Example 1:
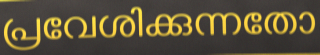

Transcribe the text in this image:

പ്രവേശിക്കുന്നതോ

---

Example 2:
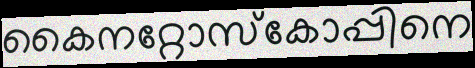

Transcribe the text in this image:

കൈനറ്റോസ്കോപ്പിനെ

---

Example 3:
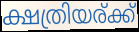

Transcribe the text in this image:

ക്ഷത്രിയര്ക്ക്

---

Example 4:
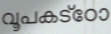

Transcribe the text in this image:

വൂപകട്ഠോ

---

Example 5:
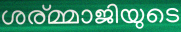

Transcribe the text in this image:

ശര്മ്മാജിയുടെ